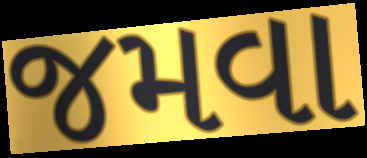
જમવા